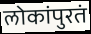
लोकांपुरतं